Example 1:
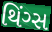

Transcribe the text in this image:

થિંગ્સ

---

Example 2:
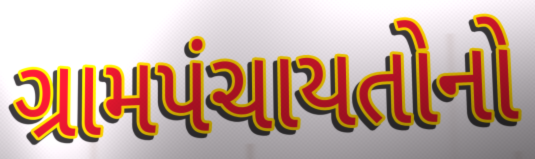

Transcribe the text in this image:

ગ્રામપંચાયતોનો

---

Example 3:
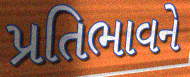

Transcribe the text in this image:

પ્રતિભાવને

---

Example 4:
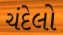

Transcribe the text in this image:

ચંદેલો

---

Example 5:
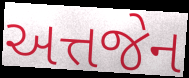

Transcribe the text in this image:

અત્તજેન